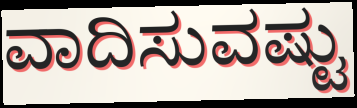
ವಾದಿಸುವಷ್ಟು